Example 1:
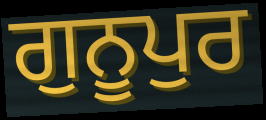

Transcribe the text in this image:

ਗੁਨੂਪੁਰ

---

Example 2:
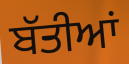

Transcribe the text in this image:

ਬੱਤੀਆਂ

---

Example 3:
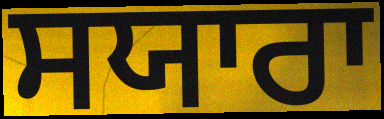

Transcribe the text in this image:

ਸਯਾਰਾ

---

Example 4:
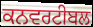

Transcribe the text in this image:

ਕਨਵਰਟੀਬਲ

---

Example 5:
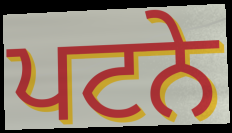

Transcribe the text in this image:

ਪਟਨੇ